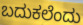
ಬದುಕಲೆಂದು